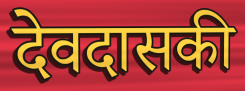
देवदासकी